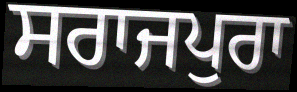
ਸਰਾਜਪੁਰਾ